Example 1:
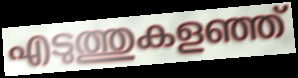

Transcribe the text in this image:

എടുത്തുകളഞ്ഞ്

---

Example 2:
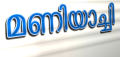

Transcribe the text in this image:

മണിയാച്ചി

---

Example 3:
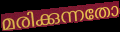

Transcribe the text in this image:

മരിക്കുന്നതോ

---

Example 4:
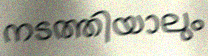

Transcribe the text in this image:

നടത്തിയാലും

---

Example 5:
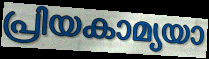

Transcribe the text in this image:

പ്രിയകാമ്യയാ